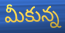
మీకున్న